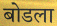
बोडला